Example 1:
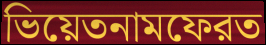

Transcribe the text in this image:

ভিয়েতনামফেরত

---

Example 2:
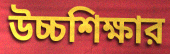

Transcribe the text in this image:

উচ্চশিক্ষার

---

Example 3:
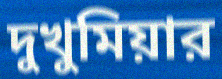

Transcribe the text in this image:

দুখুমিয়ার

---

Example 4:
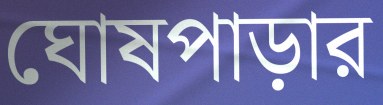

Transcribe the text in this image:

ঘোষপাড়ার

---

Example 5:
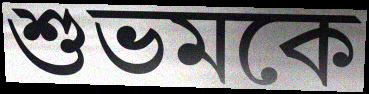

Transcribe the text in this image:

শুভমকে